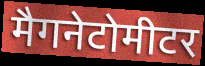
मैगनेटोमीटर